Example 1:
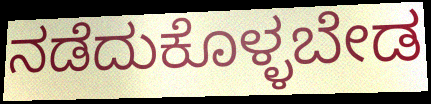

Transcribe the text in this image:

ನಡೆದುಕೊಳ್ಳಬೇಡ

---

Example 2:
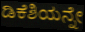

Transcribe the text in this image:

ಡಿಕೆಶಿಯನ್ನೇ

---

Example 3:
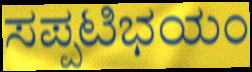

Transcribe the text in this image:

ಸಪ್ಪಟಿಭಯಂ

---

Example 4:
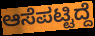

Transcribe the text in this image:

ಆಸೆಪಟ್ಟಿದ್ದೆ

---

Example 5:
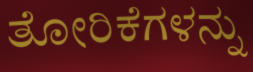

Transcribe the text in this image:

ತೋರಿಕೆಗಳನ್ನು